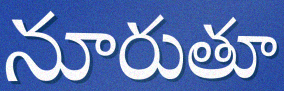
నూరుతూ